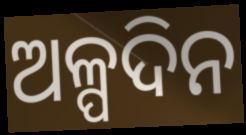
ଅଳ୍ପଦିନ